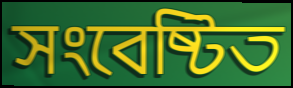
সংবেষ্টিত